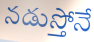
నడుస్తోనే